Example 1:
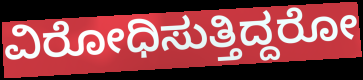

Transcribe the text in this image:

ವಿರೋಧಿಸುತ್ತಿದ್ದರೋ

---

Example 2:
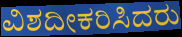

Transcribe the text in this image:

ವಿಶದೀಕರಿಸಿದರು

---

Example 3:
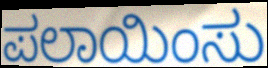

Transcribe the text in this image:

ಪಲಾಯಿಂಸು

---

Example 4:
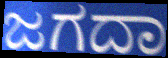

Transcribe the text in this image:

ಜಗದಾ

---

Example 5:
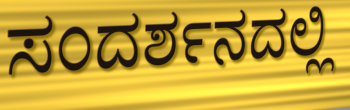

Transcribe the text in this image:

ಸಂದರ್ಶನದಲ್ಲಿ